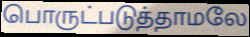
பொருட்படுத்தாமலே